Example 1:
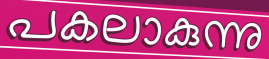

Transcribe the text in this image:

പകലാകുന്നു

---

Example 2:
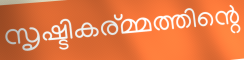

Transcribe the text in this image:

സൃഷ്ടികര്മ്മത്തിന്റെ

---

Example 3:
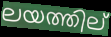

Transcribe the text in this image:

ലയത്തില്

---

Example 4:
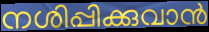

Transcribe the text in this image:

നശിപ്പിക്കുവാൻ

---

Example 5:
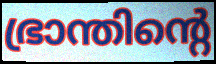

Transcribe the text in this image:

ഭ്രാന്തിന്റെ